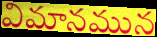
విమానమున